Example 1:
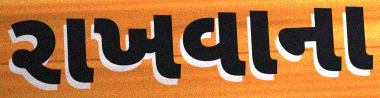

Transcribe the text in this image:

રાખવાના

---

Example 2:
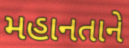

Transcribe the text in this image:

મહાનતાને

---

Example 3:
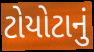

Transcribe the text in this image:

ટોયોટાનું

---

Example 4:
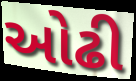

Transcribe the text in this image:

ઓઢી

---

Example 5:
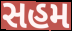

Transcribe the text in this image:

સહમ